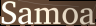
Samoa